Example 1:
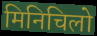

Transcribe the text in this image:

मिनिचिलो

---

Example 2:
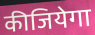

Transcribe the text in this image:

कीजियेगा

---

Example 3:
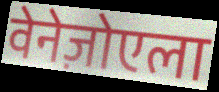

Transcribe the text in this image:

वेनेज़ोएला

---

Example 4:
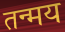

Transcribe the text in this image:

तन्मय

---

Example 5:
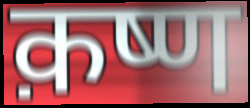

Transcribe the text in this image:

क़ष्ण